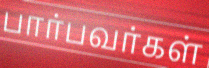
பார்பவர்கள்